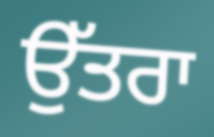
ਉੱਤਰਾ